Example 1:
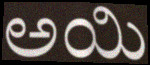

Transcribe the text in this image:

ಅಯಿ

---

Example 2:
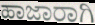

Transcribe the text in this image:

ಹಾಜಾರಾಗಿ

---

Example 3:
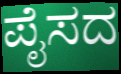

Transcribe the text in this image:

ಪೈಸದ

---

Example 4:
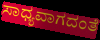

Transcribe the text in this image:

ಸಾಧ್ಯವಾಗದಂತೆ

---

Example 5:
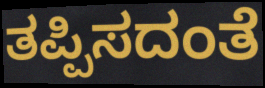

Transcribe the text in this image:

ತಪ್ಪಿಸದಂತೆ